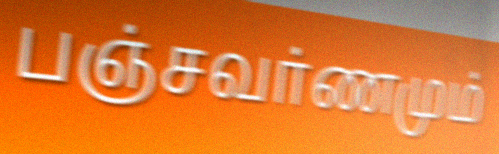
பஞ்சவர்ணமும்